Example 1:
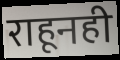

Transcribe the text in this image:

राहूनही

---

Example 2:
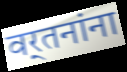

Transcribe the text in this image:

वर्तनांना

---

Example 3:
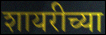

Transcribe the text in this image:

शायरीच्या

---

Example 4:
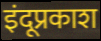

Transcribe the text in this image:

इंदूप्रकाश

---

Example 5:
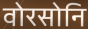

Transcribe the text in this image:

वोरसोनि